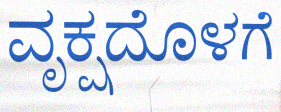
ವೃಕ್ಷದೊಳಗೆ